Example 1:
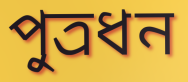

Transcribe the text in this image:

পুত্রধন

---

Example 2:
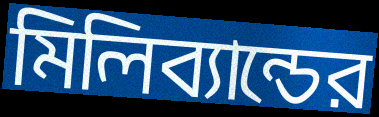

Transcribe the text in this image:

মিলিব্যান্ডের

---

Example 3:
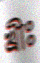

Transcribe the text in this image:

খ্রীঃ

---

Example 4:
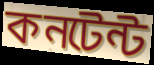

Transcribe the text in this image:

কনটেন্ট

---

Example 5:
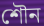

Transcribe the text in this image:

শৌন